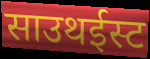
साउथईस्ट